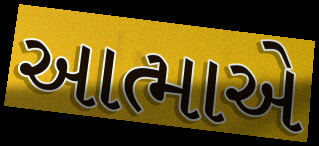
આત્માએ